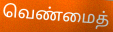
வெண்மைத்